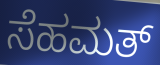
ಸೆಹಮತ್